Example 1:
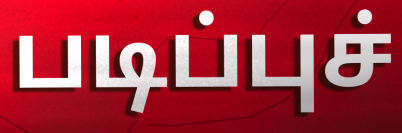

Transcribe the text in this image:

படிப்புச்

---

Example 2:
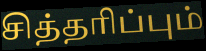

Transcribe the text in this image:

சித்தரிப்பும்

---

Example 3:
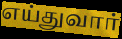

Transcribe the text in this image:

எய்துவார்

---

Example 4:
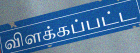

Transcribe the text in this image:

விளக்கப்பட்ட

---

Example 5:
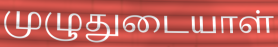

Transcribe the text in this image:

முழுதுடையாள்